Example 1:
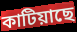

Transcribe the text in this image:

কাটিয়াছে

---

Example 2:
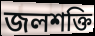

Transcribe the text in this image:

জলশক্তি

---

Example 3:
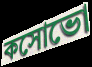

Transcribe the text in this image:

কসোভো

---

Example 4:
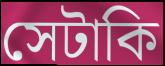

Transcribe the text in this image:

সেটাকি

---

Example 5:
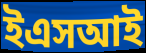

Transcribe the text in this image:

ইএসআই